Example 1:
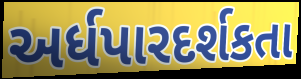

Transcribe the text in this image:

અર્ધપારદર્શકતા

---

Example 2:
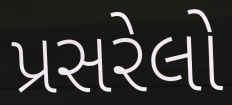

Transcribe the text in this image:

પ્રસરેલો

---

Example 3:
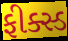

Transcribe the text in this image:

ફીક્સ્ડ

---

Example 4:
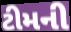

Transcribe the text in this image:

ટીમની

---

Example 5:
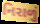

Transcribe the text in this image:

નિરાળું